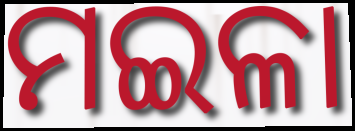
ମଇଳା